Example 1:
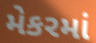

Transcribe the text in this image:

મેકરમાં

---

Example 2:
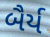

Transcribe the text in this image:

બૈર્ય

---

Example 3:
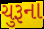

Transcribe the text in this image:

ચુરૂના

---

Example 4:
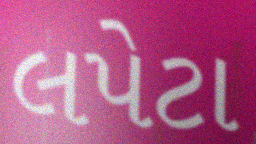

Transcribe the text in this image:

લપેટા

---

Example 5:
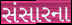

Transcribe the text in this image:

સંસારના